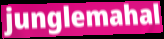
junglemahal